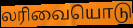
லரிவையொடு